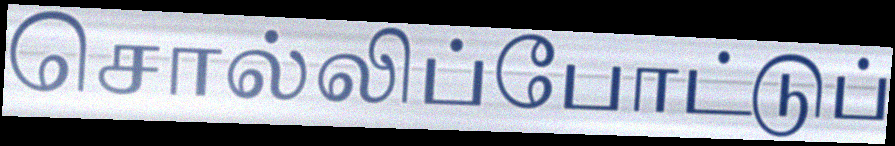
சொல்லிப்போட்டுப்